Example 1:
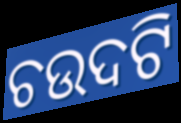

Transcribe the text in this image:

ଚଉଦଟି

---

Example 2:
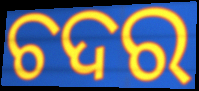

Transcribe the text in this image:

ଚଦର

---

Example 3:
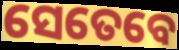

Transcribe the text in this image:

ସେତେବେ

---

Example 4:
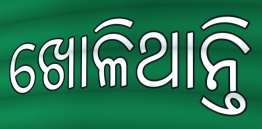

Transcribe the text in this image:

ଖୋଳିଥାନ୍ତି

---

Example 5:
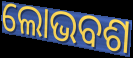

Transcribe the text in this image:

ଲୋଭବଶ